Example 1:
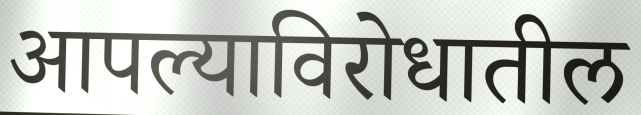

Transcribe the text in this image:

आपल्याविरोधातील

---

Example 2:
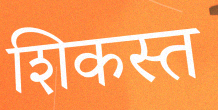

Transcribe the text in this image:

शिकस्त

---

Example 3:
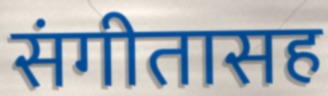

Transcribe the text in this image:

संगीतासह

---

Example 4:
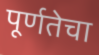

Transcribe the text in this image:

पूर्णतेचा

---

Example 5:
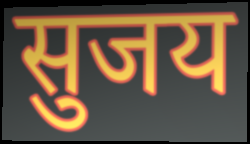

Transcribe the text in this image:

सुजय